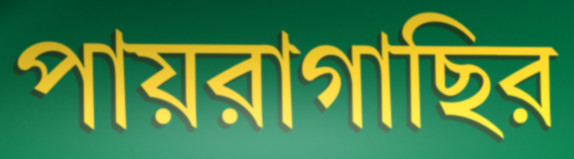
পায়রাগাছির